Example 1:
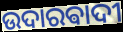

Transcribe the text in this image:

ଉଦାରଵାଦୀ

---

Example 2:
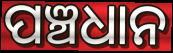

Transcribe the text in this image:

ପଞ୍ଚଧାନ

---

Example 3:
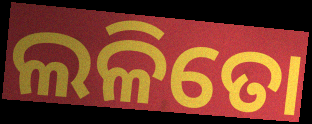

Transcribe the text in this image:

ଲଳିତୋ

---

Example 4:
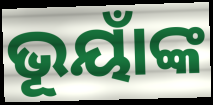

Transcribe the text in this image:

ଭୂୟାଁଙ୍କ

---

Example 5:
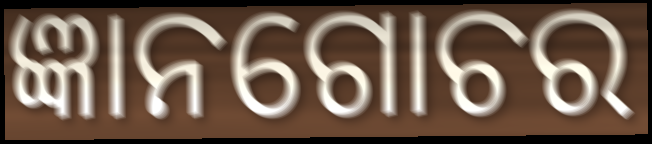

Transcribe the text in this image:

ଜ୍ଞାନଗୋଚର